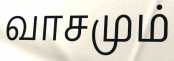
வாசமும்